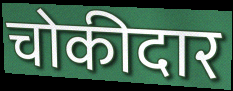
चोकीदार